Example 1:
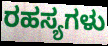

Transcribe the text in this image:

ರಹಸ್ಯಗಳು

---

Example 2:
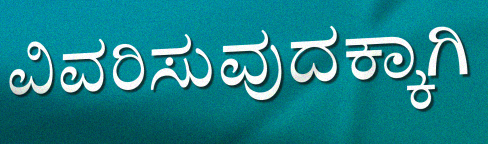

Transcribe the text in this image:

ವಿವರಿಸುವುದಕ್ಕಾಗಿ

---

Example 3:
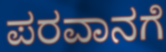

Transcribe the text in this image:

ಪರವಾನಗೆ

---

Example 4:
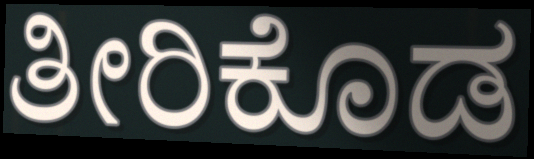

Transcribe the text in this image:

ತೀರಿಕೊಡ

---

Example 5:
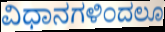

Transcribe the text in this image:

ವಿಧಾನಗಳಿಂದಲೂ